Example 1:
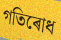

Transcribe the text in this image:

গতিৰোধ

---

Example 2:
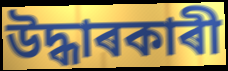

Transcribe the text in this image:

উদ্ধাৰকাৰী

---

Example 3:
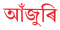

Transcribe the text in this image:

আঁজুৰি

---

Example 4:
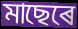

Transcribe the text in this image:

মাছেৰে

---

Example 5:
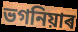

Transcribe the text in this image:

ভগনিয়াৰ